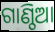
ଗାଣ୍ଠିଆ